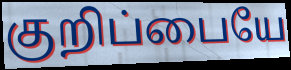
குறிப்பையே